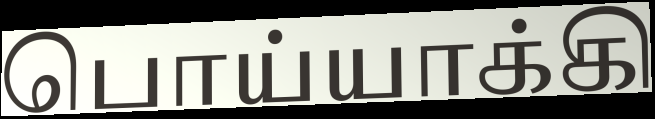
பொய்யாக்கி